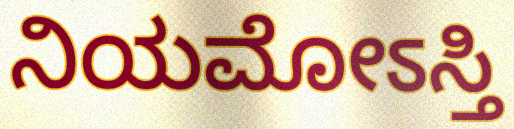
ನಿಯಮೋಽಸ್ತಿ